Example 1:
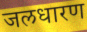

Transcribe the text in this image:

जलधारण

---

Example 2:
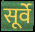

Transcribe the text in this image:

सूर्वे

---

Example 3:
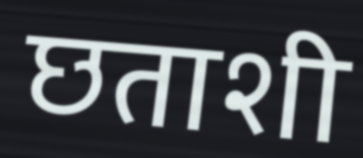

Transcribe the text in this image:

छताशी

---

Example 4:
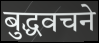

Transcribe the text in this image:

बुद्धवचने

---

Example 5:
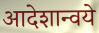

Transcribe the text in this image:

आदेशान्वये